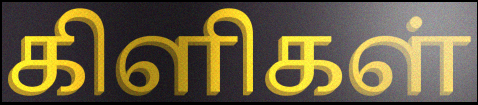
கிளிகள்